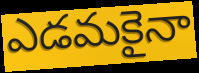
ఎడమకైనా